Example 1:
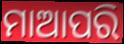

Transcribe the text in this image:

ମାଆପରି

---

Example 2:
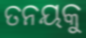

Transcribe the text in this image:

ତନୟକୁ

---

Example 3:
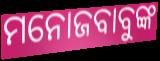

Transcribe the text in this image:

ମନୋଜବାବୁଙ୍କ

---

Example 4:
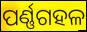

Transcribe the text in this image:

ପର୍ଣ୍ଣଗହଳ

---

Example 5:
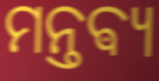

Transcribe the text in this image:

ମନ୍ତଵ୍ୟ